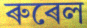
ৰুৰেল